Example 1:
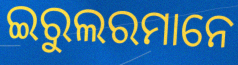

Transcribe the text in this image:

ଇରୁଲରମାନେ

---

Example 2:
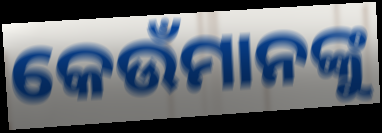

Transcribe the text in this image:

କେଉଁମାନଙ୍କୁ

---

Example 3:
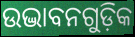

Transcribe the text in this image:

ଉଦ୍ଭାବନଗୁଡ଼ିକ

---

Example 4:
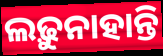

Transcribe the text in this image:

ଲଢ଼ୁନାହାନ୍ତି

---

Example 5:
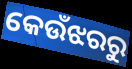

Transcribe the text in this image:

କେଉଁଝରରୁ